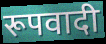
रूपवादी